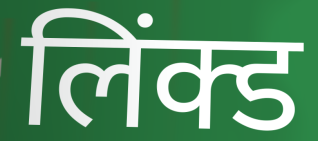
लिंक्ड